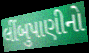
લીંબુપાણીનો